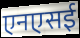
एनएसई